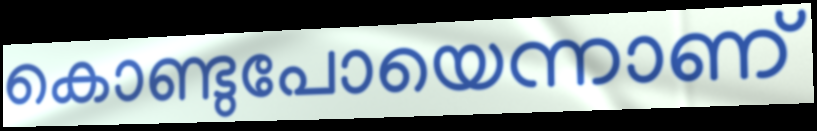
കൊണ്ടുപോയെന്നാണ്